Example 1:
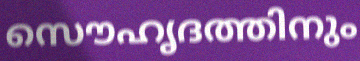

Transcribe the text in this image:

സൌഹൃദത്തിനും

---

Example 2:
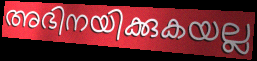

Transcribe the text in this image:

അഭിനയിക്കുകയല്ല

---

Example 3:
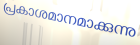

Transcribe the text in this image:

പ്രകാശമാനമാക്കുന്നു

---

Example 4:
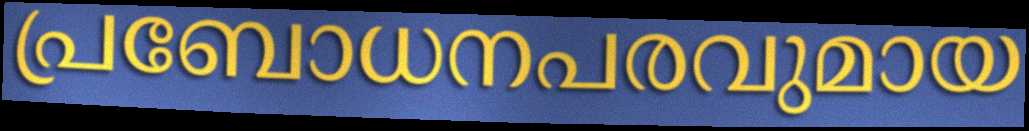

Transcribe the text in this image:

പ്രബോധനപരവുമായ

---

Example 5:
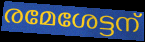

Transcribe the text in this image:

രമേശേട്ടന്